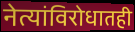
नेत्यांविरोधातही